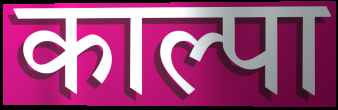
काल्पा